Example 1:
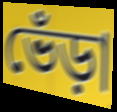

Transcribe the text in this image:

ভেঁড়া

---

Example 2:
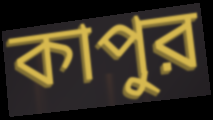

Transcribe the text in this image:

কাপুর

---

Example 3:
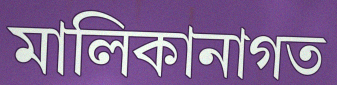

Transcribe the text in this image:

মালিকানাগত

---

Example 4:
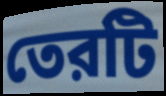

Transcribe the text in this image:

তেরটি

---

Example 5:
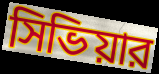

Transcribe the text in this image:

সিভিয়ার